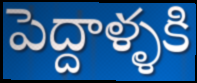
పెద్దాళ్ళకి